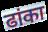
ढांका